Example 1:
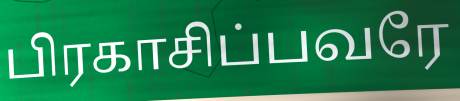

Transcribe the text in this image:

பிரகாசிப்பவரே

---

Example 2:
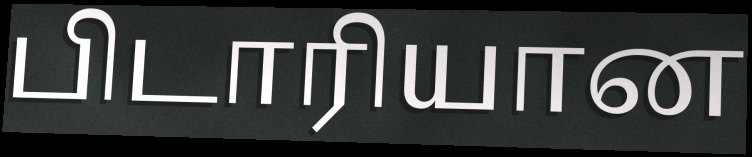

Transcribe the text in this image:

பிடாரியான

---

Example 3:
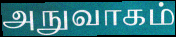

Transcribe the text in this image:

அநுவாகம்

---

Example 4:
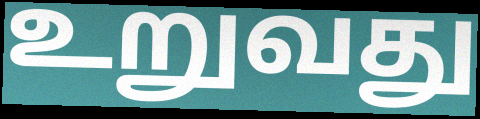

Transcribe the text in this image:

உறுவது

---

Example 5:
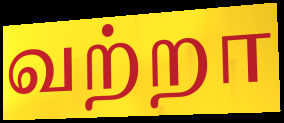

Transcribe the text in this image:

வற்றா